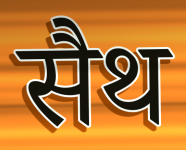
सैथ